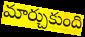
మార్చుకుంది